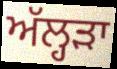
ਅੱਲ੍ਹੜਾ